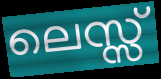
ലെസ്സ്